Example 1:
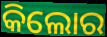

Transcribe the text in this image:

କିଲୋର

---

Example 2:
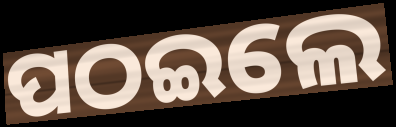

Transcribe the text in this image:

ପଠଇଲେ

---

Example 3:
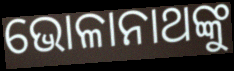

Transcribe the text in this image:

ଭୋଳାନାଥଙ୍କୁ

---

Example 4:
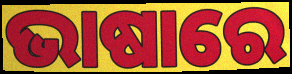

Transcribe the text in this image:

ଭାଷାରେ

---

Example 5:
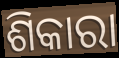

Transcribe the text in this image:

ଶିକାରା